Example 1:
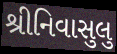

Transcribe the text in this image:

શ્રીનિવાસુલુ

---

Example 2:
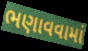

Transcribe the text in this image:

ભણાવવામાં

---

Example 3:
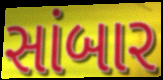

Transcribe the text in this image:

સાંબાર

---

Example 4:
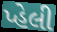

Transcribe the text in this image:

પ્હેલી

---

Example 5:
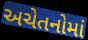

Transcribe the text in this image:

અચેતનોમાં